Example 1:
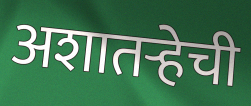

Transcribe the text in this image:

अशातऱ्हेची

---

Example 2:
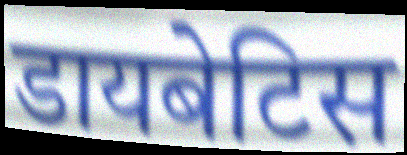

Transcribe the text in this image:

डायबेटिस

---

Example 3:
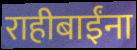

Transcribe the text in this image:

राहीबाईंना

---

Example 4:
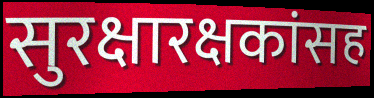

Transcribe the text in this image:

सुरक्षारक्षकांसह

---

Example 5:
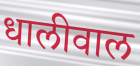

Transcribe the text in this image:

धालीवाल